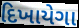
દિખાયેગા